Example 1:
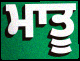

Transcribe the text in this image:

ਮਾਤੂ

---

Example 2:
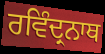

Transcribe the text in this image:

ਰਵਿੰਦ੍ਰਨਾਥ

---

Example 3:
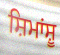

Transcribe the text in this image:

ਸ਼ਿਮਾਂਸ਼ੂ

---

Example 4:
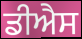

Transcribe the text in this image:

ਡੀਐਸ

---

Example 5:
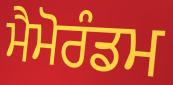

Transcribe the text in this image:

ਮੈਮੋਰੰਡਮ